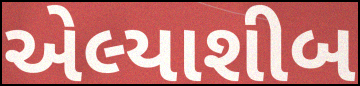
એલ્યાશીબ